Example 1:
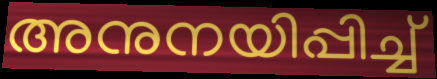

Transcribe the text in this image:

അനുനയിപ്പിച്ച്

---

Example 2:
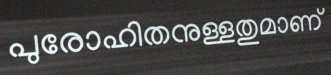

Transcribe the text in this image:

പുരോഹിതനുള്ളതുമാണ്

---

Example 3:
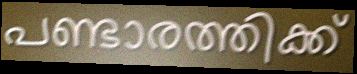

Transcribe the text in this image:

പണ്ടാരത്തിക്ക്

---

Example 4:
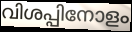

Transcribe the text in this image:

വിശപ്പിനോളം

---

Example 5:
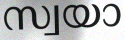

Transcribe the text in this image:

സ്വയാ